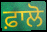
ਫ਼ਾਲੋ